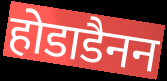
होडाडैनन